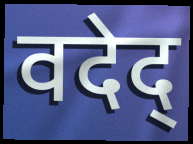
वदेद्